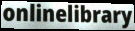
onlinelibrary